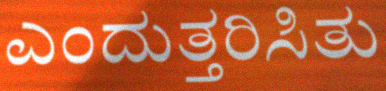
ಎಂದುತ್ತರಿಸಿತು